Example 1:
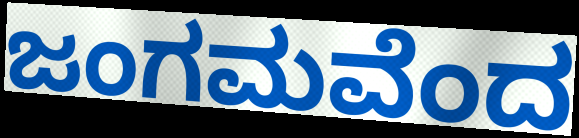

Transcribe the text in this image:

ಜಂಗಮವೆಂದ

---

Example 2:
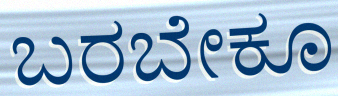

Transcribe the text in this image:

ಬರಬೇಕೂ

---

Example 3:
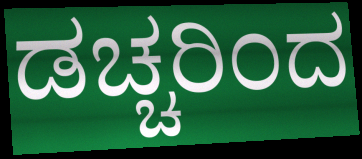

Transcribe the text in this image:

ಡಚ್ಚರಿಂದ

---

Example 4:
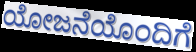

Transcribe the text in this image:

ಯೋಜನೆಯೊಂದಿಗೆ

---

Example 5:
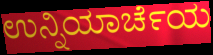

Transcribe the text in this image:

ಉನ್ನಿಯಾರ್ಚೆಯ